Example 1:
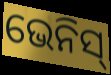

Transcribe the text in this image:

ଭେନିସ୍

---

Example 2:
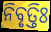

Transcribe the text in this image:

ନିବୃତ୍ତିଃ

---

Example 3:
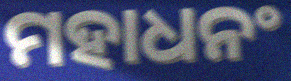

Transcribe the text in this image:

ମହାଧନଂ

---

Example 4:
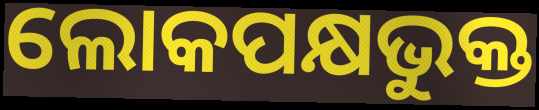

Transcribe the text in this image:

ଲୋକପକ୍ଷଭୁକ୍ତ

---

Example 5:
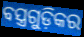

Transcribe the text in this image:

ବସ୍ତ୍ରଗୁଡ଼ିକର